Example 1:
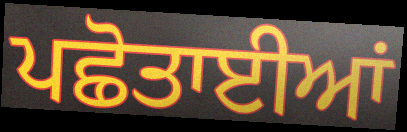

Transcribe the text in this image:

ਪਛੋਤਾਈਆਂ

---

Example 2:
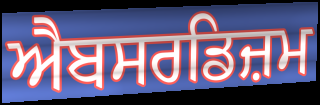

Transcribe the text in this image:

ਐਬਸਰਡਿਜ਼ਮ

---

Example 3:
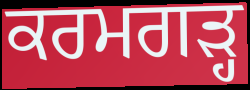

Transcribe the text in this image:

ਕਰਮਗੜ੍ਹ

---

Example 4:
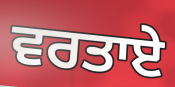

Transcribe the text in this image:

ਵਰਤਾਏ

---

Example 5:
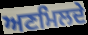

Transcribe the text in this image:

ਅਣਮਿਲਦੇ